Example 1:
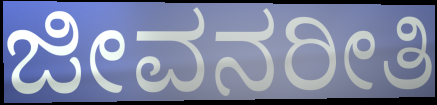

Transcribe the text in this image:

ಜೀವನರೀತಿ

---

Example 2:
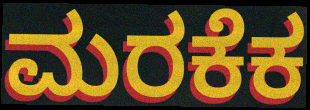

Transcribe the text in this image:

ಮರಕೆಕ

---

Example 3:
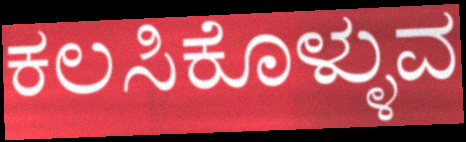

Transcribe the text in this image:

ಕಲಸಿಕೊಳ್ಳುವ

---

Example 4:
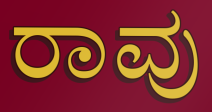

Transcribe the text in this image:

ರಾವು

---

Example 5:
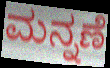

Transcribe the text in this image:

ಮನ್ನಣೆ